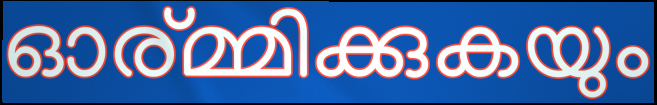
ഓര്മ്മിക്കുകയും